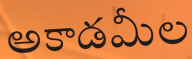
అకాడమీల